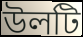
উলটি